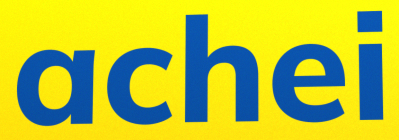
achei